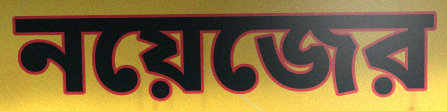
নয়েজের